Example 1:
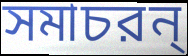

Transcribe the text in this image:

সমাচরন্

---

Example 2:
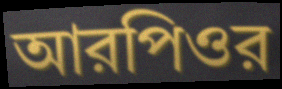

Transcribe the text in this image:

আরপিওর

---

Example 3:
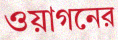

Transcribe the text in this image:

ওয়াগনের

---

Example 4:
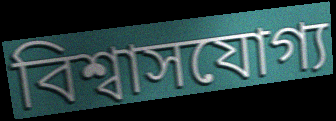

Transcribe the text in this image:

বিশ্বাসযোগ্য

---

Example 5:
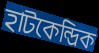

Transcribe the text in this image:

হাটকেন্দ্রিক